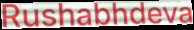
Rushabhdeva